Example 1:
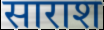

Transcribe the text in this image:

साराश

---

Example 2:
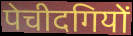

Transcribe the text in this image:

पेचीदगियों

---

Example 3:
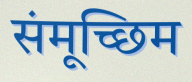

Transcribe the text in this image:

संमूच्छिम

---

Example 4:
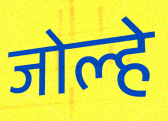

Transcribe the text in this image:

जोल्हे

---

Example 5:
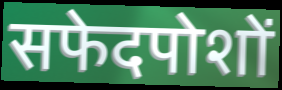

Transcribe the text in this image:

सफेदपोशों